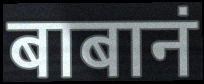
बाबानं